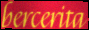
bercerita